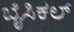
ಬೈಸಿಕಲ್